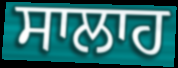
ਸਾਲਾਹ